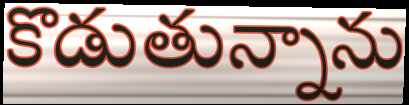
కొడుతున్నాను